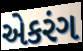
એકરંગ